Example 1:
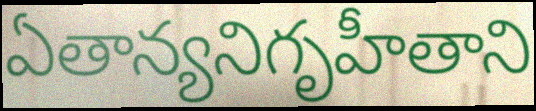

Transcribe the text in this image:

ఏతాన్యనిగృహీతాని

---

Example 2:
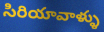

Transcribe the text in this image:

సిరియావాళ్ళు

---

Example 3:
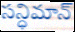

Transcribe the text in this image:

సన్ధిమాన్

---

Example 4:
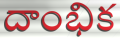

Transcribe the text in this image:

దాంభిక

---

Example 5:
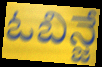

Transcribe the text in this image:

ఓబిన్జే